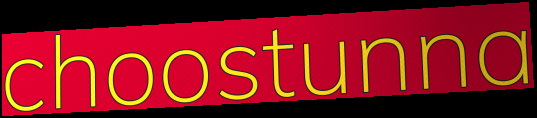
choostunna